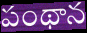
పంథాన